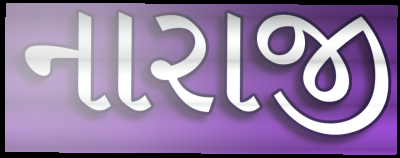
નારાજી